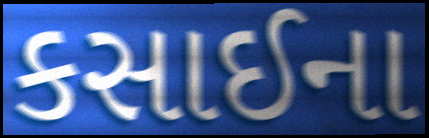
કસાઈના